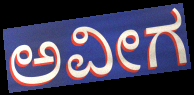
ಅವೀಗ